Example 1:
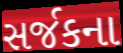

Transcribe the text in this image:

સર્જકના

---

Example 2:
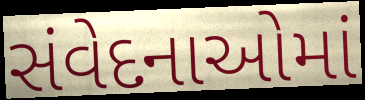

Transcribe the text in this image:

સંવેદનાઓમાં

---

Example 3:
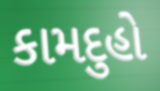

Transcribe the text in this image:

કામદુહો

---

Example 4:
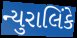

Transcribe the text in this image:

ન્યુરાલિંકે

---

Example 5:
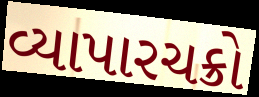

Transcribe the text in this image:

વ્યાપારચક્રો